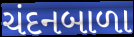
ચંદનબાળા